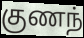
குணந்